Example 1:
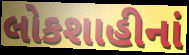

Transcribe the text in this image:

લોકશાહીનાં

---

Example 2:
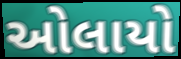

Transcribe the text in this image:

ઓલાયો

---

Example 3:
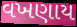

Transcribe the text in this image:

વખણાય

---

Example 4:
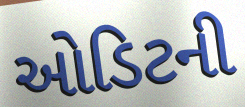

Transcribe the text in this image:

ઓડિટની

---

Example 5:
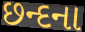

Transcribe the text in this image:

છન્દના